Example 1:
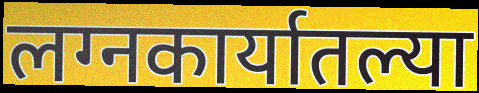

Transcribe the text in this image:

लग्नकार्यातल्या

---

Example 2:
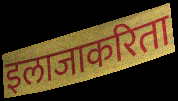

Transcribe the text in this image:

इलाजाकरिता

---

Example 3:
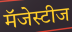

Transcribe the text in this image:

मॅजेस्टीज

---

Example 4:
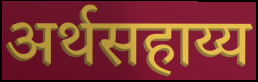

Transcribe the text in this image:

अर्थसहाय्य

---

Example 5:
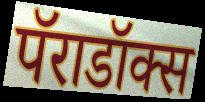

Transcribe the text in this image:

पॅराडॉक्स